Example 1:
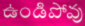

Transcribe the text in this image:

ఉండిపోవు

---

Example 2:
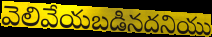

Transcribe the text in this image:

వెలివేయబడినదనియు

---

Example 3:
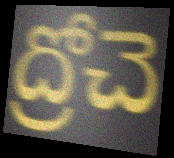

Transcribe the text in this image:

ద్రోచె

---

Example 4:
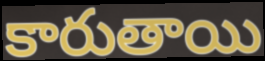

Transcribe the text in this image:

కారుతాయి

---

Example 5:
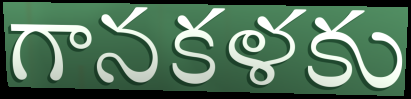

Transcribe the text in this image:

గానకళకు